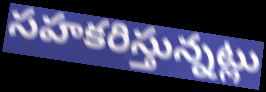
సహకరిస్తున్నట్లు